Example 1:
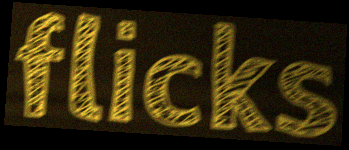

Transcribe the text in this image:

flicks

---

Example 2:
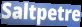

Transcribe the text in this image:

Saltpetre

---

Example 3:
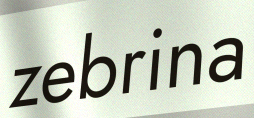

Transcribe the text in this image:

zebrina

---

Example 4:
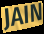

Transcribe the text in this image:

JAIN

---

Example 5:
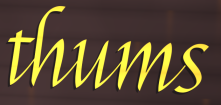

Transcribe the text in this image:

thums